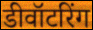
डीवॉटरिंग